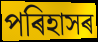
পৰিহাসৰ